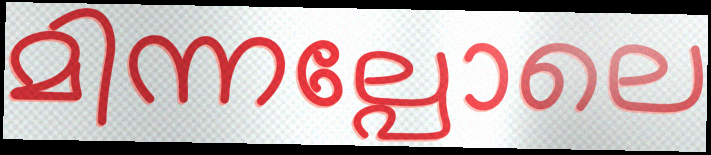
മിന്നല്പോലെ